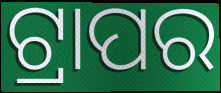
ଟ୍ରାପର